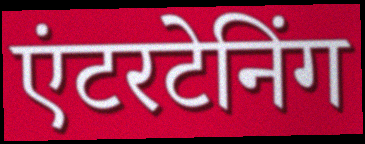
एंटरटेनिंग